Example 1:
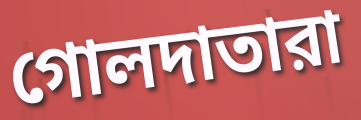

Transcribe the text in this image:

গোলদাতারা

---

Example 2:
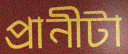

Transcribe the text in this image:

প্রানীটা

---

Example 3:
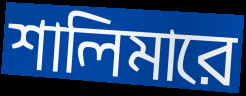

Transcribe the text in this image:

শালিমারে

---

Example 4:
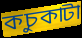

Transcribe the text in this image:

কচুকাটা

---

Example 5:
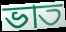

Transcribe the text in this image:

ভাত